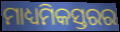
ମାଧ୍ୟମିକସ୍ତରର